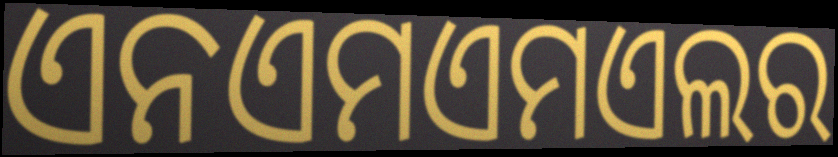
ଏନଏମଏମଏଲର